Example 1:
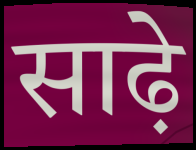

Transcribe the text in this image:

साढ़े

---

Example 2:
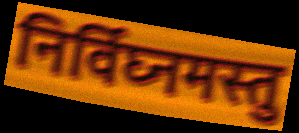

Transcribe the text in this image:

निर्विघ्नमस्तु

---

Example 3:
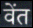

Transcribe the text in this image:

वेंत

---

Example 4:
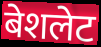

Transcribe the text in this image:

बेशलेट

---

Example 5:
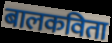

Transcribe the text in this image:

बालकविता